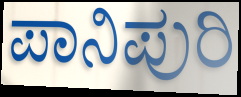
ಪಾನಿಪುರಿ